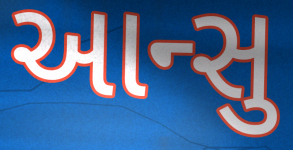
આન્સુ